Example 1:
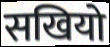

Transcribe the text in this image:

सखियो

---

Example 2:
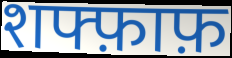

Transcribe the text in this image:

शफ्फ़ाफ़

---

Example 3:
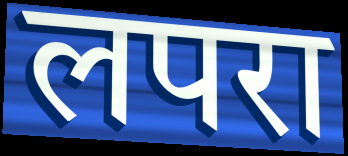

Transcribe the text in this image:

लपरा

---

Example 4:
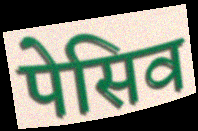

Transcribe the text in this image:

पेसिव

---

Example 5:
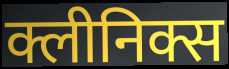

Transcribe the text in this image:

क्लीनिक्स